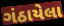
ગંઠાયેલા